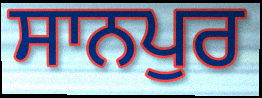
ਸਾਨਪੁਰ